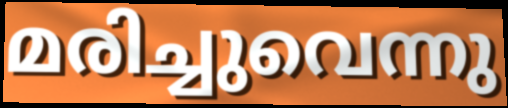
മരിച്ചുവെന്നു